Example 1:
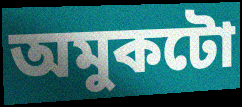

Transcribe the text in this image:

অমুকটো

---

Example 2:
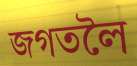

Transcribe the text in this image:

জগতলৈ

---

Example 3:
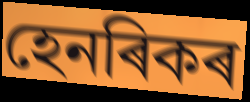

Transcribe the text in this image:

হেনৰিকৰ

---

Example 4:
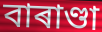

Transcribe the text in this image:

বাৰাণ্ডা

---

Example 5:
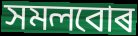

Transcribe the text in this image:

সমলবোৰ